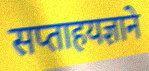
सप्ताहयज्ञाने